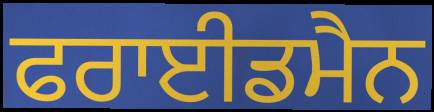
ਫਰਾਈਡਮੈਨ